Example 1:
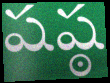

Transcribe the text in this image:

షష్ఠ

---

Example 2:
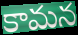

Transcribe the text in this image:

కామన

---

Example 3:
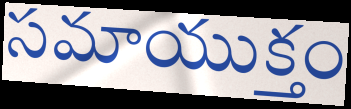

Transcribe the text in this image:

సమాయుక్తం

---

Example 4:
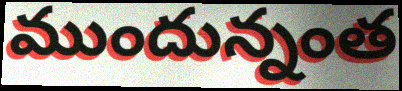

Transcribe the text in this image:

ముందున్నంత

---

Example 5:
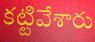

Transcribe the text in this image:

కట్టివేశారు